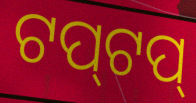
ଟପ୍‌ଟପ୍